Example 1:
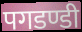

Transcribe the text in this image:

पगडण्डी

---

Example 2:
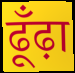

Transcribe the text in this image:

ढूँढ़ा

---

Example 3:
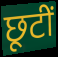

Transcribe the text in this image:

छूटीं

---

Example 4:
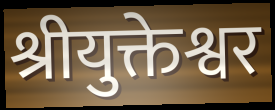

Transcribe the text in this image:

श्रीयुक्तेश्वर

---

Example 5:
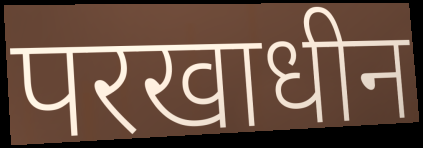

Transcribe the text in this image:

परखाधीन